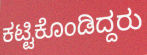
ಕಟ್ಟಿಕೊಂಡಿದ್ದರು